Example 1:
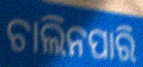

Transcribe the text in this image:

ଚାଲିନପାରି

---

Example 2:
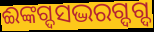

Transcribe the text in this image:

ଈଙ୍କଗ୍ଦସଦ୍ଭରଗ୍ଦଗ୍ଦ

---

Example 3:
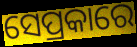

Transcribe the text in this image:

ସେପ୍ରକାରେ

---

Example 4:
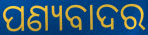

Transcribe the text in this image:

ପଣ୍ୟବାଦର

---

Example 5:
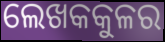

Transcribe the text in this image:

ଲେଖକକୁଳର